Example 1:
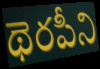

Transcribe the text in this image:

థెరపీని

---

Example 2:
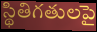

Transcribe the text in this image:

స్థితిగతులపై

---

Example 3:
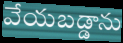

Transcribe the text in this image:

వేయబడ్డాను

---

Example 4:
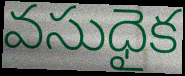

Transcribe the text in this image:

వసుధైక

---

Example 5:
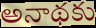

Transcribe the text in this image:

అనాథకు